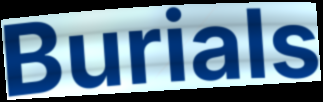
Burials